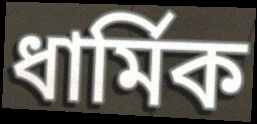
ধার্মিক